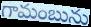
గామంబును